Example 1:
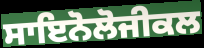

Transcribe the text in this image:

ਸਾਇਨੋਲੋਜੀਕਲ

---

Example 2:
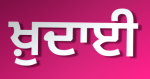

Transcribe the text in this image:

ਖ਼ੁਦਾਈ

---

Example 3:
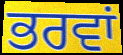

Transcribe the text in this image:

ਭਰਵਾਂ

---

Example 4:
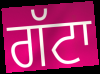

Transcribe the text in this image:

ਗੱਟਾ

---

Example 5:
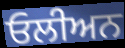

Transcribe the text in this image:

ਓਲੀਅਨ